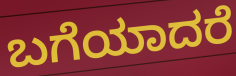
ಬಗೆಯಾದರೆ